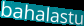
bahalastu